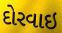
દોરવાઇ